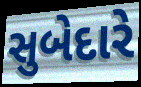
સુબેદારે